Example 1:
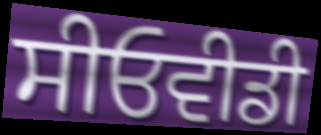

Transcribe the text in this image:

ਸੀਓਵੀਡੀ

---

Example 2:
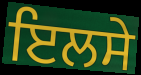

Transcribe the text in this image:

ਇਲਸੇ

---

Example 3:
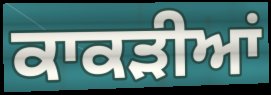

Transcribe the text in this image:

ਕਾਕੜੀਆਂ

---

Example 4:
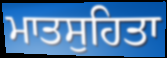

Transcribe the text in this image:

ਮਾਤਸੁਹਿਤਾ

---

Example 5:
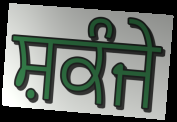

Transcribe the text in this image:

ਸ਼ਕੰਜੇ